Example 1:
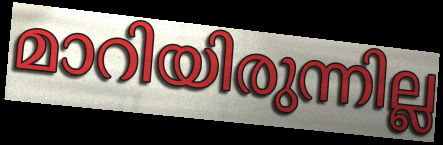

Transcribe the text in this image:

മാറിയിരുന്നില്ല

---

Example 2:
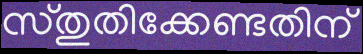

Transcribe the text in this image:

സ്തുതിക്കേണ്ടതിന്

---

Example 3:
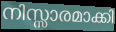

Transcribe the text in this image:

നിസ്സാരമാക്കി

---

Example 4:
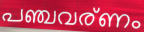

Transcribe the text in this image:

പഞ്ചവര്ണം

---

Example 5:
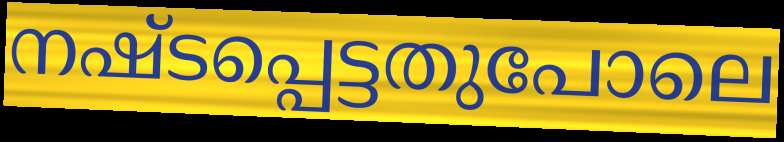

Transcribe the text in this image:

നഷ്ടപ്പെട്ടതുപോലെ